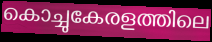
കൊച്ചുകേരളത്തിലെ